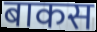
बाकस